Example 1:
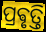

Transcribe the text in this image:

ପ୍ରଵୃତ୍ତି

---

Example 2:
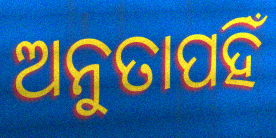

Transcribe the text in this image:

ଅନୁତାପହିଁ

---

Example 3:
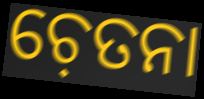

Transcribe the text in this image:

ଚ଼େତନା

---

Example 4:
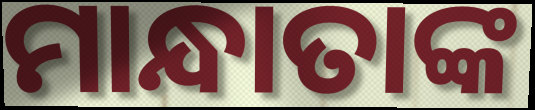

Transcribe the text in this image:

ମାନ୍ଧାତାଙ୍କ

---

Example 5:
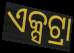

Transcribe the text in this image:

ଏକ୍ସଟ୍ରା